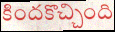
కిందకొచ్చింది